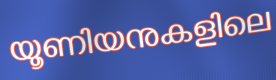
യൂണിയനുകളിലെ